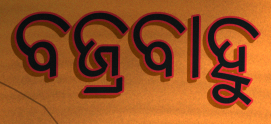
ବଜ୍ରବାହୁ